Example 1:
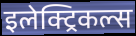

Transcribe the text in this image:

इलेक्ट्रिकल्स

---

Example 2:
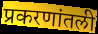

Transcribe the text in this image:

प्रकरणांतली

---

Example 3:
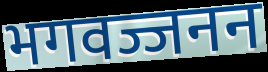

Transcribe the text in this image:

भगवज्जनन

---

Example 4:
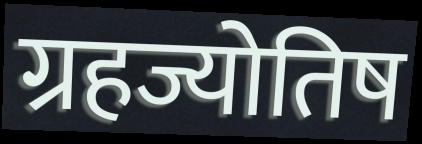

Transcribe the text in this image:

ग्रहज्योतिष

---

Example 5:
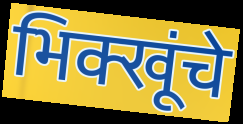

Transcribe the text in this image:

भिक्खूंचे